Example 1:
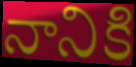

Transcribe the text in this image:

నానికి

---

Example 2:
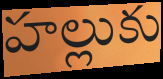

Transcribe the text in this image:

హల్లుకు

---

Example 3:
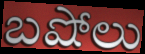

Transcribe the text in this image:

బషోలు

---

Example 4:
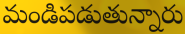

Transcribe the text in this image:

మండిపడుతున్నారు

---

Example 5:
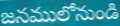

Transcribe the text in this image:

జనములోనుండి